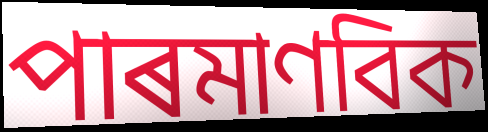
পাৰমাণবিক